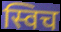
स्विच